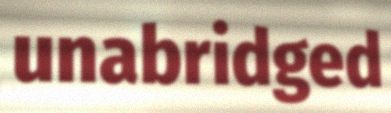
unabridged